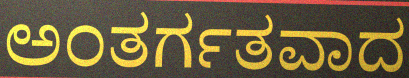
ಅಂತರ್ಗತವಾದ